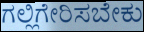
ಗಲ್ಲಿಗೇರಿಸಬೇಕು